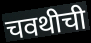
चवथीची